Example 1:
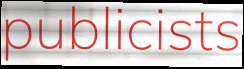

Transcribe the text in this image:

publicists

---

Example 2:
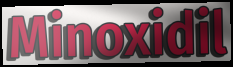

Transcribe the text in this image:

Minoxidil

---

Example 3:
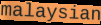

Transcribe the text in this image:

malaysian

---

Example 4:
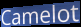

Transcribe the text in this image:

Camelot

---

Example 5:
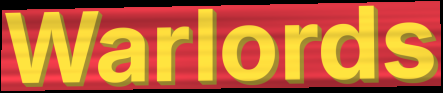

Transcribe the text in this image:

Warlords